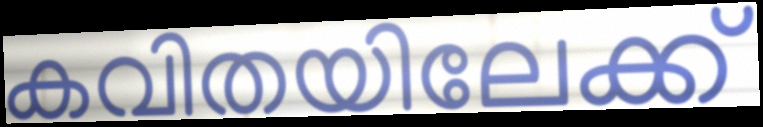
കവിതയിലേക്ക്